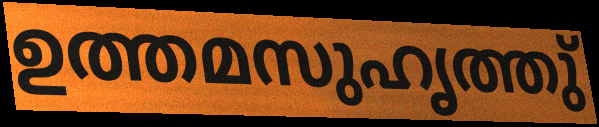
ഉത്തമസുഹൃത്തു്